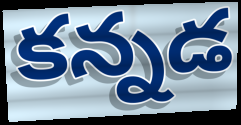
కన్నడ